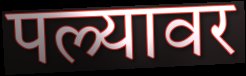
पल्यावर